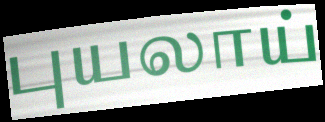
புயலாய்